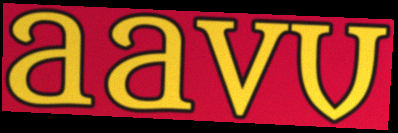
aavu